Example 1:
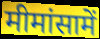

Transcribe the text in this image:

मीमांसामें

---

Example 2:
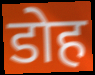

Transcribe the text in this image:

डोह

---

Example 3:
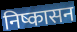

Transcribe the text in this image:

निष्कासन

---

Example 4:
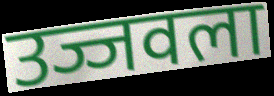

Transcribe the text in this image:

उज्जवला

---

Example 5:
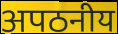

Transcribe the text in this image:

अपठनीय